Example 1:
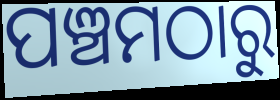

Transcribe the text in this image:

ପଞ୍ଚମଠାରୁ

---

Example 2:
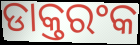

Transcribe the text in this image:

ଡାକ୍ତରଂକ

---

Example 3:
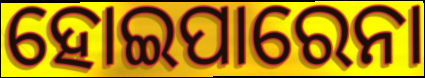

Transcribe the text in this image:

ହୋଇପାରେନା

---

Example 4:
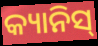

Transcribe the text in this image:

କ୍ୟାନିସ୍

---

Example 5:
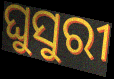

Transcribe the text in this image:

ଘୁସୁରୀ